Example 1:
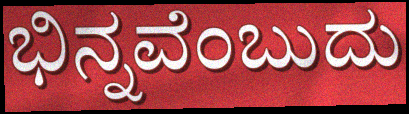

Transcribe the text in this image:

ಭಿನ್ನವೆಂಬುದು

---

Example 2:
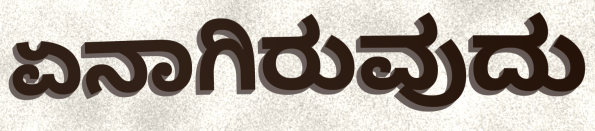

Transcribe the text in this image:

ಏನಾಗಿರುವುದು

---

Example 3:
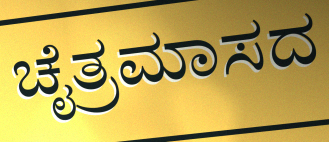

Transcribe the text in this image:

ಚೈತ್ರಮಾಸದ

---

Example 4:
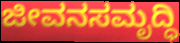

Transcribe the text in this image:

ಜೀವನಸಮೃದ್ಧಿ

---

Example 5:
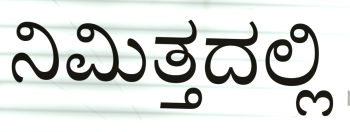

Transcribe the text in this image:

ನಿಮಿತ್ತದಲ್ಲಿ